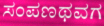
ಸಂಪಣಥವಗ